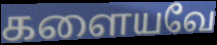
களையவே